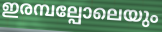
ഇരമ്പല്പോലെയും